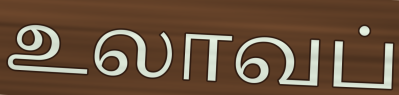
உலாவப்